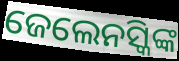
ଜେଲେନସ୍କିଙ୍କ